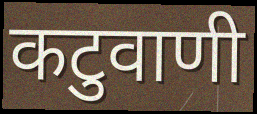
कटुवाणी